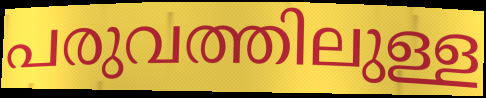
പരുവത്തിലുള്ള